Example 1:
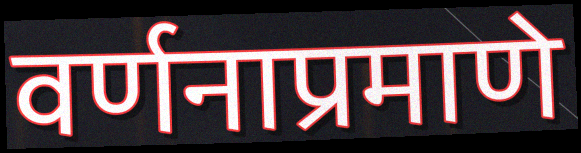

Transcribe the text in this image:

वर्णनाप्रमाणे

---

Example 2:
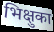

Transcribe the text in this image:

भिक्षुका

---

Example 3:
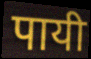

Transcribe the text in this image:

पायी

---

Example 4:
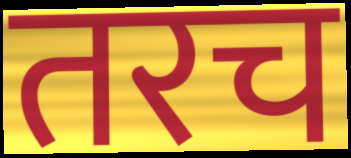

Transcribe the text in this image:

तरच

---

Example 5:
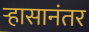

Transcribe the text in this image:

ऱ्हासानंतर